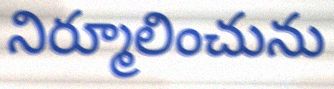
నిర్మూలించును